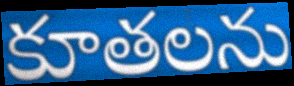
కూతలను